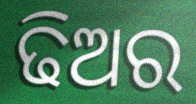
ଢିଅର